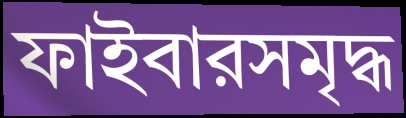
ফাইবারসমৃদ্ধ